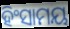
ହିଂସାମୟ